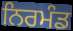
ਨਿਰਮੰਡ